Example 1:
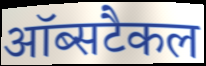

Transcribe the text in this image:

ऑब्सटैकल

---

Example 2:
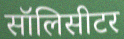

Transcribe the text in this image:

सॉलिसीटर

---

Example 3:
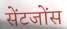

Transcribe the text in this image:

सेंटजोंस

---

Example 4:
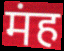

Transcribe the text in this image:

मंह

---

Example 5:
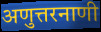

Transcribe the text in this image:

अणुत्तरनाणी